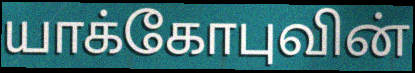
யாக்கோபுவின்